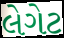
લેગેટ